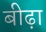
बीढ़ा